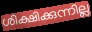
ശിക്ഷിക്കുന്നില്ല